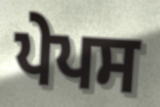
ਪੇਪਸ